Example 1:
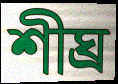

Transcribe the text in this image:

শীঘ্র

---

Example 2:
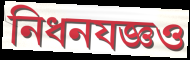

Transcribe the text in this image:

নিধনযজ্ঞও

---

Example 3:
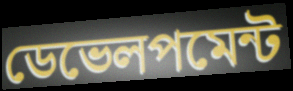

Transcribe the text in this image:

ডেভেলপমেন্ট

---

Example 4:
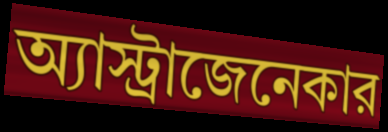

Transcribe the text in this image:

অ্যাস্ট্রাজেনেকার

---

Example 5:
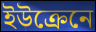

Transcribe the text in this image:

ইউক্রেনে